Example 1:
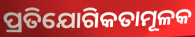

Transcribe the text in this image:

ପ୍ରତିଯୋଗିକତାମୂଳକ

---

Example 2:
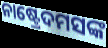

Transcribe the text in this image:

ନାଷ୍ଟ୍ରେଦମସଙ୍କ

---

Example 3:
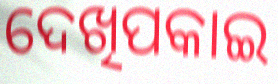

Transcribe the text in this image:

ଦେଖିପକାଇ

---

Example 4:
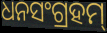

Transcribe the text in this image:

ଧନସଂଗ୍ରହମ୍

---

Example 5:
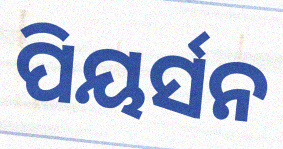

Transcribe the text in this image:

ପିୟର୍ସନ